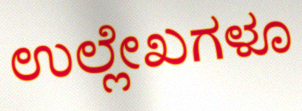
ಉಲ್ಲೇಖಗಳೂ